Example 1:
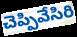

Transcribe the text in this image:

చెప్పివేసిరి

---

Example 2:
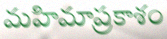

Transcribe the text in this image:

మహిమాప్రకాశం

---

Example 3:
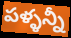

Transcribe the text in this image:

పళ్ళన్నీ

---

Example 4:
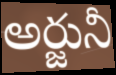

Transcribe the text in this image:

అర్జునీ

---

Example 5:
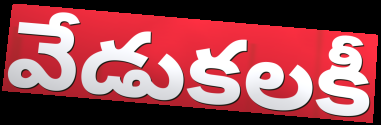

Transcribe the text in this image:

వేడుకలకీ